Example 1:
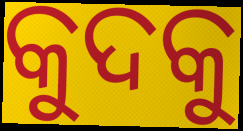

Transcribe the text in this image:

କୁଦକୁ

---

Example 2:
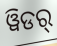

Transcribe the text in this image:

ୱିଡର୍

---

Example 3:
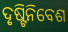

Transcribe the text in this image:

ଦୃଷ୍ଟିନିବେଶ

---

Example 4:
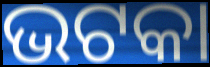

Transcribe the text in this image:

ଭଟକା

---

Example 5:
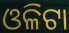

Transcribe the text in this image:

ଓଳିଟା